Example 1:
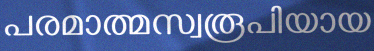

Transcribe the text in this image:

പരമാത്മസ്വരൂപിയായ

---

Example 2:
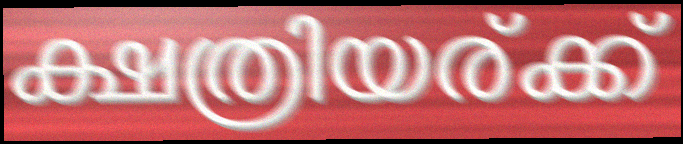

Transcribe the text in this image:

ക്ഷത്രിയര്ക്ക്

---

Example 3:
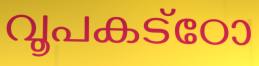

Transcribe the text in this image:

വൂപകട്ഠോ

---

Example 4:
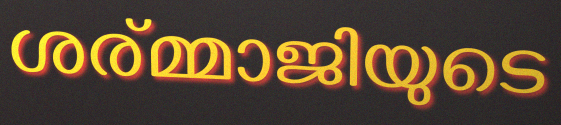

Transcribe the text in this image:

ശര്മ്മാജിയുടെ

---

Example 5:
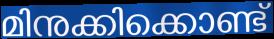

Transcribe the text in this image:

മിനുക്കിക്കൊണ്ട്